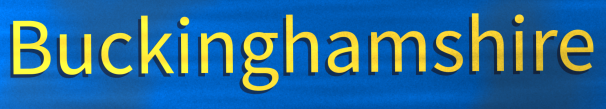
Buckinghamshire